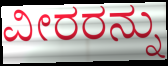
ವೀರರನ್ನು